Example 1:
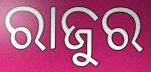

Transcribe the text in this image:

ରାଜୁର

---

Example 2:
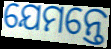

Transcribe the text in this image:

ଯେମନ୍ତେ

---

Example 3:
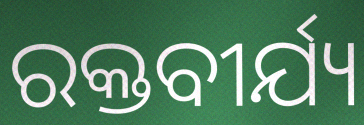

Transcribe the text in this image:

ରକ୍ତବୀର୍ଯ୍ୟ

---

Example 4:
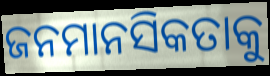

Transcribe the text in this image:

ଜନମାନସିକତାକୁ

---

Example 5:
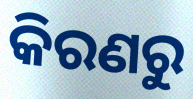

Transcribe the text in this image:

କିରଣରୁ